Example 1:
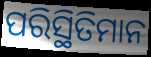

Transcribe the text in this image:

ପରିସ୍ଥିତିମାନ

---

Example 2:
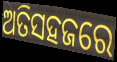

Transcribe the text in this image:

ଅତିସହଜରେ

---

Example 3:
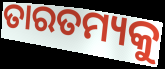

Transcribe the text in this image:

ତାରତମ୍ୟକୁ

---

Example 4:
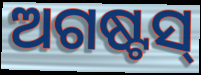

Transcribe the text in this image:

ଅଗଷ୍ଟସ୍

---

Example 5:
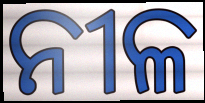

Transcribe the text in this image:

ନୀଳ